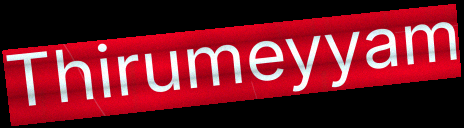
Thirumeyyam